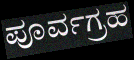
ಪೂರ್ವಗ್ರಹ